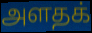
அளதக்